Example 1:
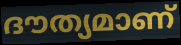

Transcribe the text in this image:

ദൗത്യമാണ്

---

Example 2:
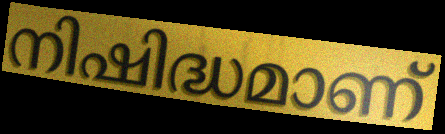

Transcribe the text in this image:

നിഷിദ്ധമാണ്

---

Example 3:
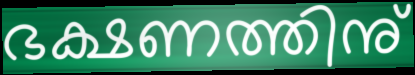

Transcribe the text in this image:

ഭക്ഷണത്തിനു്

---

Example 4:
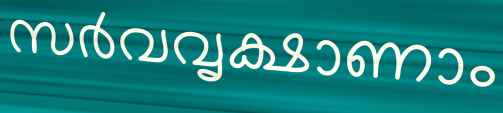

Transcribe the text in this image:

സർവവൃക്ഷാണാം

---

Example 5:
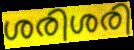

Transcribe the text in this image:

ശരിശരി